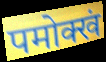
पमोक्खं